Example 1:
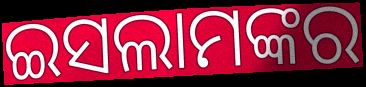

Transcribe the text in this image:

ଇସଲାମଙ୍କର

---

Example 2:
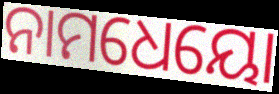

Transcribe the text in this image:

ନାମଧେୟୋ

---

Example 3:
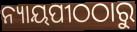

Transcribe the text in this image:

ନ୍ୟାୟପୀଠଠାରୁ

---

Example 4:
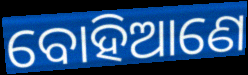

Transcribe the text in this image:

ବୋହିଆଣେ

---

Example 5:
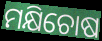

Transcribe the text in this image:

ମକ୍ଷିଚୋଷ